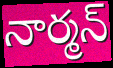
నార్మన్